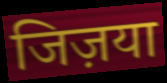
जिज़या